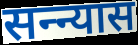
सन्न्यास